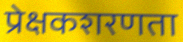
प्रेक्षकशरणता